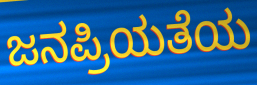
ಜನಪ್ರಿಯತೆಯ